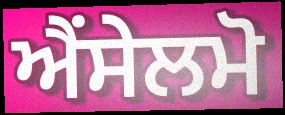
ਐਂਸੇਲਮੋ